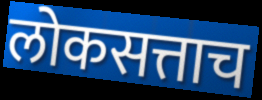
लोकसत्ताच